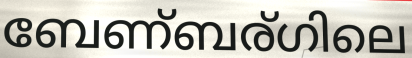
ബേണ്ബര്ഗിലെ